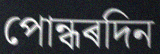
পোন্ধৰদিন